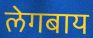
लेगबाय